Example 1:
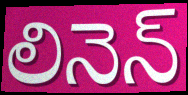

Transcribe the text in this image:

లినెన్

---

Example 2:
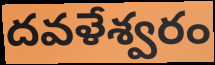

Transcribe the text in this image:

దవళేశ్వరం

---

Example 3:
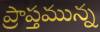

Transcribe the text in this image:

ప్రాప్తమున్న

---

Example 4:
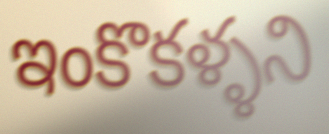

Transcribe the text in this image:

ఇంకొకళ్ళని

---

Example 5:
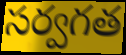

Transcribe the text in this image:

సర్వగత